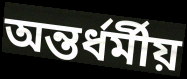
অন্তর্ধর্মীয়